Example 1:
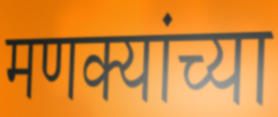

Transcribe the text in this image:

मणक्यांच्या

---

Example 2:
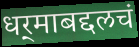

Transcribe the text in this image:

धर्माबद्दलचं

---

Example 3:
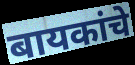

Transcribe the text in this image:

बायकांचे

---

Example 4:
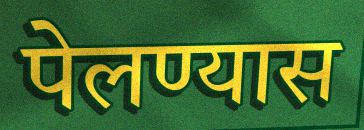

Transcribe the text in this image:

पेलण्यास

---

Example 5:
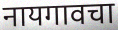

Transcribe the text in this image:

नायगावचा